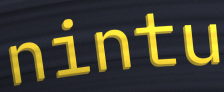
nintu